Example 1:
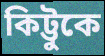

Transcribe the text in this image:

কিট্টুকে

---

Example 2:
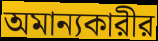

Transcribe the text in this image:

অমান্যকারীর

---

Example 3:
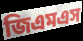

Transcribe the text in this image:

জিএমএস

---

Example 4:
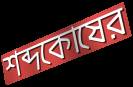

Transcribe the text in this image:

শব্দকোষের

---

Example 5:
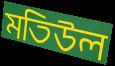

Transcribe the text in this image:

মতিউল